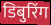
डिबुरिंग